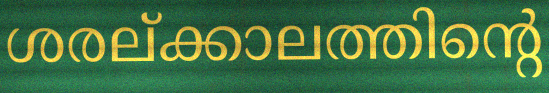
ശരല്ക്കാലത്തിന്റെ